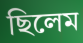
ছিলেম